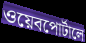
ওয়েবপোর্টালে